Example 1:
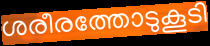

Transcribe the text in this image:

ശരീരത്തോടുകൂടി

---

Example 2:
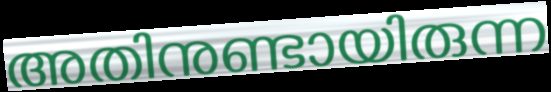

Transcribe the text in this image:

അതിനുണ്ടായിരുന്ന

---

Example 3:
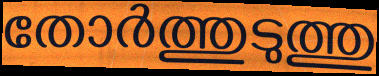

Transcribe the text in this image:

തോർത്തുടുത്തു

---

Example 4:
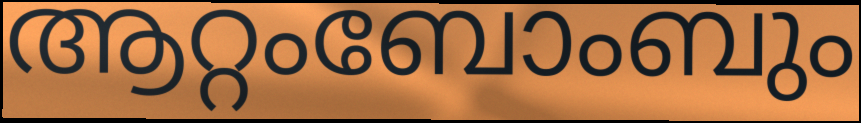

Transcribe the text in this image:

ആറ്റംബോംബും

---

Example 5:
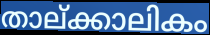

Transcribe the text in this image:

താല്ക്കാലികം